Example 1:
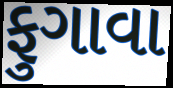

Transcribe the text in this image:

ફુગાવા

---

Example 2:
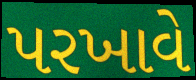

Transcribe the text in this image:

પરખાવે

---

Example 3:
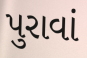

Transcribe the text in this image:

પુરાવાં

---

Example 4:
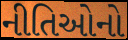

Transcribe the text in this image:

નીતિઓનો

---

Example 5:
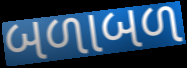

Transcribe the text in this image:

બળાબળ